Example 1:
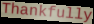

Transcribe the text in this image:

Thankfully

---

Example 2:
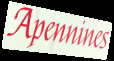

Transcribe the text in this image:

Apennines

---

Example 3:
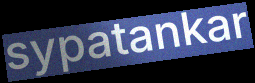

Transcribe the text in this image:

sypatankar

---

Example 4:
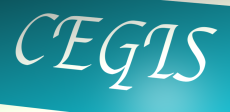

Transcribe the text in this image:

CEGIS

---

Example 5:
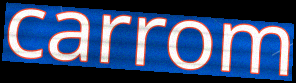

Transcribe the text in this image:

carrom